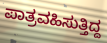
ಪಾತ್ರವಹಿಸುತ್ತಿದ್ದ